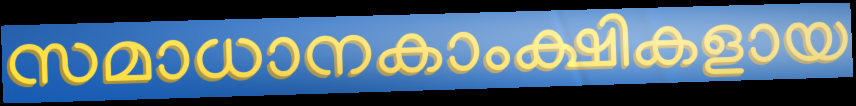
സമാധാനകാംക്ഷികളായ